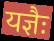
यज्ञैः